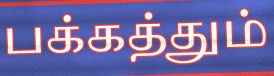
பக்கத்தும்